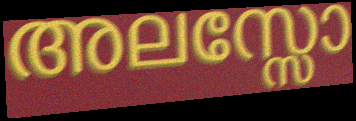
അലസ്സോ